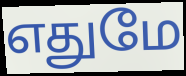
எதுமே